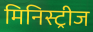
मिनिस्ट्रीज